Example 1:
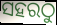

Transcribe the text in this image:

ସହରଠୁ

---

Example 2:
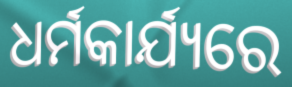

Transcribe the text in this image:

ଧର୍ମକାର୍ଯ୍ୟରେ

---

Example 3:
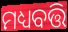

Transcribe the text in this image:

ମଧ୍ୟବତ୍ତି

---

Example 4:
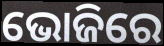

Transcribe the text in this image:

ଭୋଜିରେ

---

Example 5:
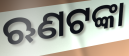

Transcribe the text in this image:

ଋଣଟଙ୍କା